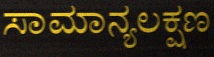
ಸಾಮಾನ್ಯಲಕ್ಷಣ